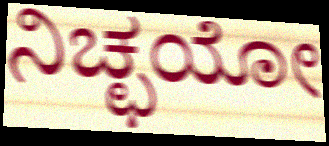
ನಿಚ್ಛಯೋ